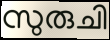
സുരുചി